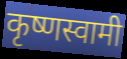
कृष्णस्वामी